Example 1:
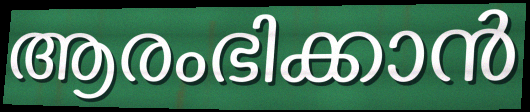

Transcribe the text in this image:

ആരംഭിക്കാൻ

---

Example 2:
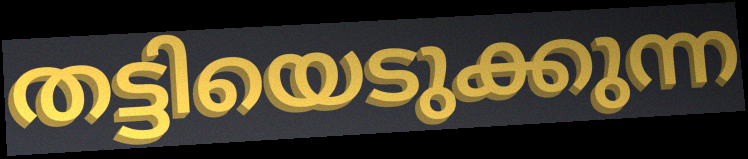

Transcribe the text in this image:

തട്ടിയെടുക്കുന്ന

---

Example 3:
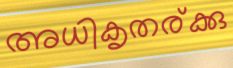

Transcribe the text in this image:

അധികൃതര്ക്കു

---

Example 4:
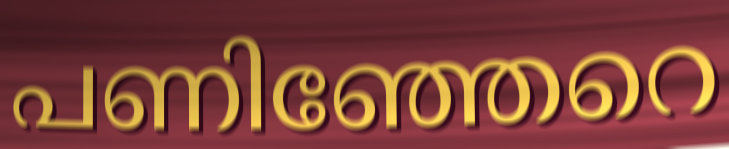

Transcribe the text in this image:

പണിഞ്ഞേറെ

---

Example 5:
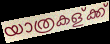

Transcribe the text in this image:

യാത്രകള്ക്ക്